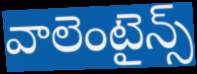
వాలెంటైన్స్